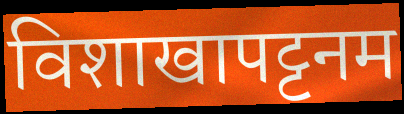
विशाखापट्टनम